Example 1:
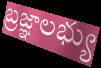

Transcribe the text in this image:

బ్రజ్ఞాలభ్యు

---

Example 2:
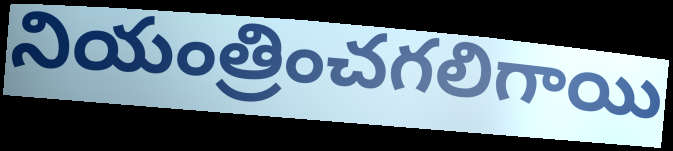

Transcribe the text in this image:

నియంత్రించగలిగాయి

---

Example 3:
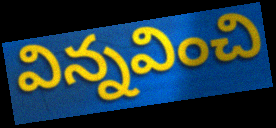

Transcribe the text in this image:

విన్నవించి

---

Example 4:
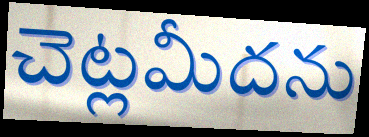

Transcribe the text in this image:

చెట్లమీదను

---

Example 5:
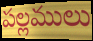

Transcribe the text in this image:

పల్లములు